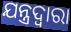
ଯନ୍ତ୍ରଦ୍ଵାରା